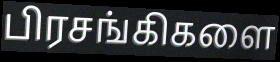
பிரசங்கிகளை